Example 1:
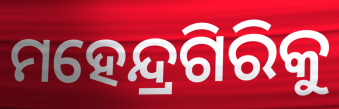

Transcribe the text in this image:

ମହେନ୍ଦ୍ରଗିରିକୁ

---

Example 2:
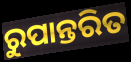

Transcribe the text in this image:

ରୁପାନ୍ତରିତ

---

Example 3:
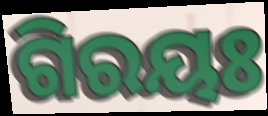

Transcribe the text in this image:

ଗିରୟଃ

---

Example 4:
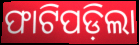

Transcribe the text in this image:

ଫାଟିପଡ଼ିଲା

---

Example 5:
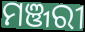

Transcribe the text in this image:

ମଞ୍ଜରୀ